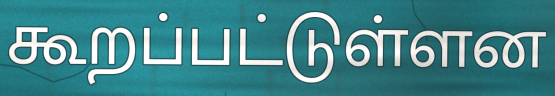
கூறப்பட்டுள்ளன